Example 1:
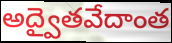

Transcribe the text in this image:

అద్వైతవేదాంత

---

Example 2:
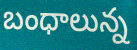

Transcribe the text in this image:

బంధాలున్న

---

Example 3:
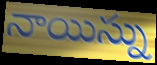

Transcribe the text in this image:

నాయిస్ను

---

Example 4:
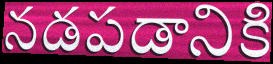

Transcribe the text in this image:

నడపడానికి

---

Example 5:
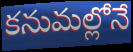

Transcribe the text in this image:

కనుమల్లోనే